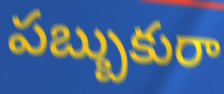
పబ్బుకురా